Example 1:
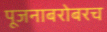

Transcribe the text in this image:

पूजनाबरोबरच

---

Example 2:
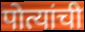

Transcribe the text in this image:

पोत्यांची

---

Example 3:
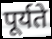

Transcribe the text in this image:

पूर्यते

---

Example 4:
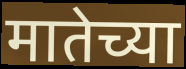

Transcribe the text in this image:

मातेच्या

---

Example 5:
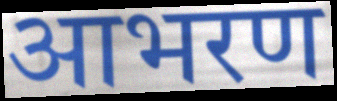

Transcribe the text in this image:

आभरण